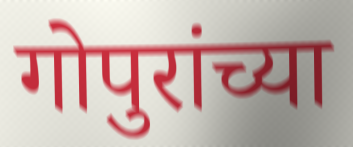
गोपुरांच्या